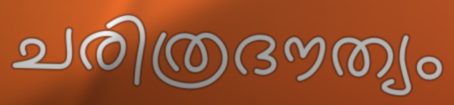
ചരിത്രദൗത്യം